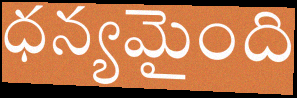
ధన్యమైంది